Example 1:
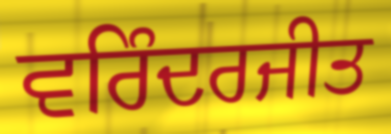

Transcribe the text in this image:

ਵਰਿੰਦਰਜੀਤ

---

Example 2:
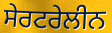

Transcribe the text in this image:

ਸੇਰਟਰੇਲੀਨ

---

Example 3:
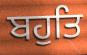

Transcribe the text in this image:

ਬਹੁਤਿ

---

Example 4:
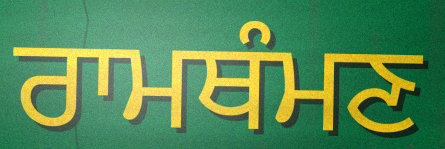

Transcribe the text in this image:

ਰਾਮਥੰਮਣ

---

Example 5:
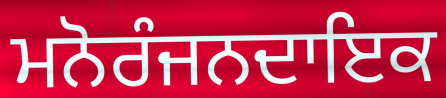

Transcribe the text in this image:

ਮਨੋਰੰਜਨਦਾਇਕ